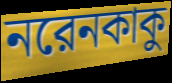
নরেনকাকু